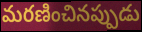
మరణించినప్పుడు